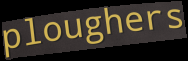
ploughers